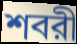
শবরী